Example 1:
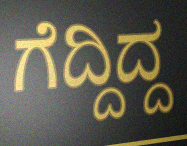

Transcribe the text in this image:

ಗೆದ್ದಿದ್ದ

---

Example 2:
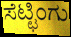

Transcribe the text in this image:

ಸೆಟ್ಟಿಂಗು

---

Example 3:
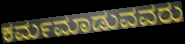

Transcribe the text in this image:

ಕರ್ಮಮಾಡುವವರು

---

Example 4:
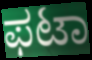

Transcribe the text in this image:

ಫಟಾ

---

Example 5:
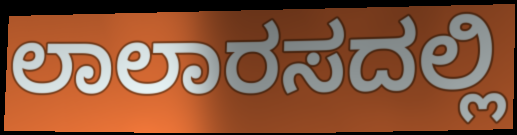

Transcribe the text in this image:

ಲಾಲಾರಸದಲ್ಲಿ